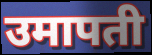
उमापती